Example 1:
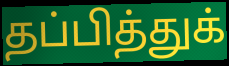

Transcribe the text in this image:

தப்பித்துக்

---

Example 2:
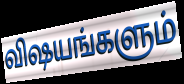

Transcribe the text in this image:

விஷயங்களும்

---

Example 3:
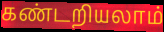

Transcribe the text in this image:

கண்டறியலாம்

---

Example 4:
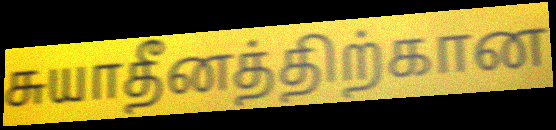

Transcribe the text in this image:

சுயாதீனத்திற்கான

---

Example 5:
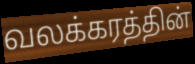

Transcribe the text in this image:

வலக்கரத்தின்